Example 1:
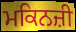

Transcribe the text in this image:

ਮਕਿਨਜ਼ੀ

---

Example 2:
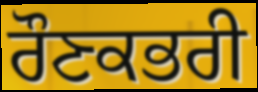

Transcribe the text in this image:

ਰੌਣਕਭਰੀ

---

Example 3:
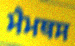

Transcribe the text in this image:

ਮੈਮਥਸ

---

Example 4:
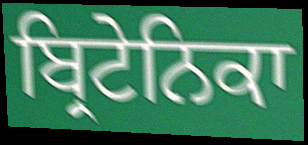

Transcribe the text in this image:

ਬ੍ਰਿਟੇਨਿਕਾ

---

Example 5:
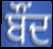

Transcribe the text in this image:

ਬੌਂਦ